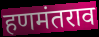
हणमंतराव